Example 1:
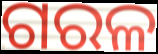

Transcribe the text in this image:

ଗରଳ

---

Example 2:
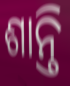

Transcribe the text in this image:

ଶାନ୍ତି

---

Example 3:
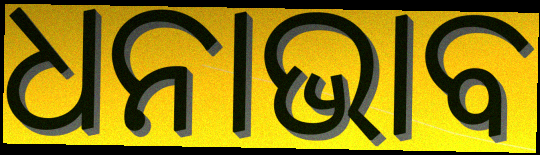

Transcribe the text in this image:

ଧନାଭାବ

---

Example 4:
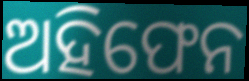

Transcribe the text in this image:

ଅହିଫେନ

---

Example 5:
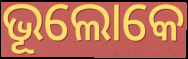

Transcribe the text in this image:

ଭୂଲୋକେ